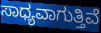
ಸಾಧ್ಯವಾಗುತ್ತಿವೆ